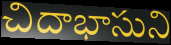
చిదాభాసుని